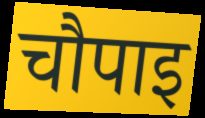
चौपाइ